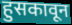
हुसकावून